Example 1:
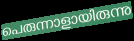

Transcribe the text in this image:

പെരുന്നാളായിരുന്നു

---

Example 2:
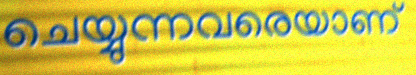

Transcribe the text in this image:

ചെയ്യുന്നവരെയാണ്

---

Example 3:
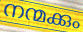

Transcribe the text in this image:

നന്മക്കും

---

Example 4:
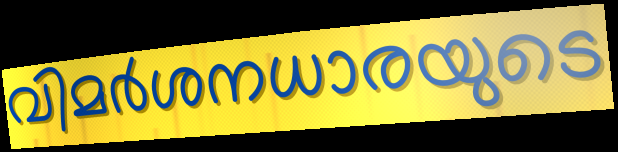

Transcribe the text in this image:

വിമർശനധാരയുടെ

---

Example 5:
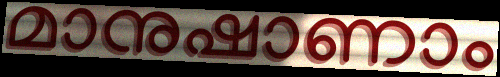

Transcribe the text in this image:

മാനുഷാണാം